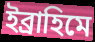
ইব্ৰাহিমে